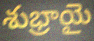
శుభ్రాయై